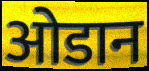
ओडान